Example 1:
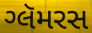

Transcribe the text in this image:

ગ્લૅમરસ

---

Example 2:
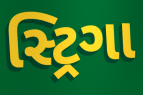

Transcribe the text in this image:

સ્ટ્રિગા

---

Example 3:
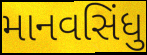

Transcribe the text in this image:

માનવસિંધુ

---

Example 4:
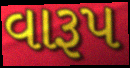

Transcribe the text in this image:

વારૂપ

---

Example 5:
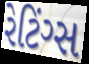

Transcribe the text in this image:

રેટિંગ્સ